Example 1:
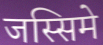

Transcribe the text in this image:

जस्सिमे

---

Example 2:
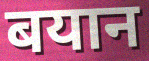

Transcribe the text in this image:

बयान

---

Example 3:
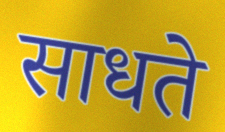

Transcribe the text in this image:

साधते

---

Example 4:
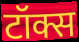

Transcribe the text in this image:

टॉक्स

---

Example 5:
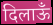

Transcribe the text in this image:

दिलाऊँ